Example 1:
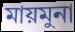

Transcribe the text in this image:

মায়মুনা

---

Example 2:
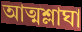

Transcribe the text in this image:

আত্মশ্লাঘা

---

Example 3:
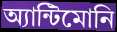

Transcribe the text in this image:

অ্যান্টিমোনি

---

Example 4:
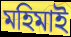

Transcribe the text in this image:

মহিমাই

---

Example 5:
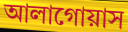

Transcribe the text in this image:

আলাগোয়াস